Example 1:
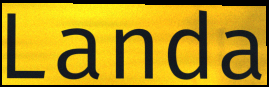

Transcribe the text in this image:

Landa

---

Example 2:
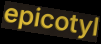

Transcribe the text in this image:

epicotyl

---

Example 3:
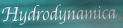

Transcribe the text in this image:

Hydrodynamica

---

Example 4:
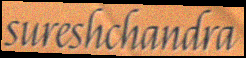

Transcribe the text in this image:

sureshchandra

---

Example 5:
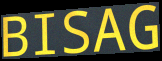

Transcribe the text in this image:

BISAG